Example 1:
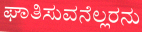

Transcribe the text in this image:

ಘಾತಿಸುವನೆಲ್ಲರನು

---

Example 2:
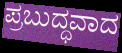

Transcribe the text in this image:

ಪ್ರಬುದ್ಧವಾದ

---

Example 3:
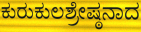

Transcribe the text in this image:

ಕುರುಕುಲಶ್ರೇಷ್ಠನಾದ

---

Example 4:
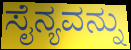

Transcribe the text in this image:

ಸೈನ್ಯವನ್ನು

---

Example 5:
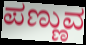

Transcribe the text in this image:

ಪಣ್ಣುವ